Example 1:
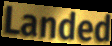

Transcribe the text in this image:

Landed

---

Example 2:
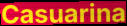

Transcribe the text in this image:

Casuarina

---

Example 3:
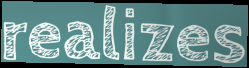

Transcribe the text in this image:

realizes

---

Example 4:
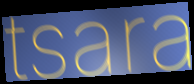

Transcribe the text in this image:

tsara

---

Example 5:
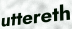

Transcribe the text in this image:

uttereth